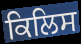
ਕਿਲਿਸ